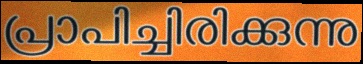
പ്രാപിച്ചിരിക്കുന്നു